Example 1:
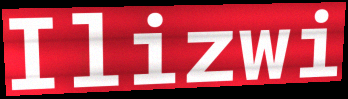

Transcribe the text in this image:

Ilizwi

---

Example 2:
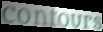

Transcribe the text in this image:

contours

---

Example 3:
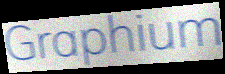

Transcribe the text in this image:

Graphium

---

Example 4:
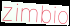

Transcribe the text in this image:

zimbio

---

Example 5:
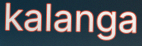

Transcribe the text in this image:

kalanga